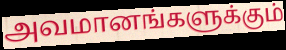
அவமானங்களுக்கும்